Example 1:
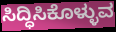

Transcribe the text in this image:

ಸಿದ್ಧಿಸಿಕೊಳ್ಳುವ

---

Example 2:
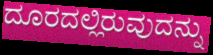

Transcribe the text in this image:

ದೂರದಲ್ಲಿರುವುದನ್ನು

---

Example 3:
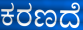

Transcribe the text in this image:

ಕರಣದೆ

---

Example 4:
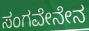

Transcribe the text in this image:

ಸಂಗವೇನೇನ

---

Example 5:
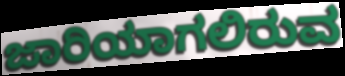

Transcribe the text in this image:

ಜಾರಿಯಾಗಲಿರುವ